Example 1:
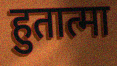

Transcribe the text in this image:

हुतात्मा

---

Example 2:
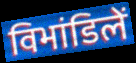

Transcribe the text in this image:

विभांडिलें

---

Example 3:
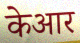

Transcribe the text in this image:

केआर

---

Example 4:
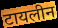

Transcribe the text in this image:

टायलीन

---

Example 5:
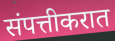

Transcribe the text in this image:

संपत्तीकरात